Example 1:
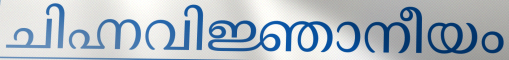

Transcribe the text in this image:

ചിഹ്നവിജ്ഞാനീയം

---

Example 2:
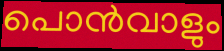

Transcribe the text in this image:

പൊൻവാളും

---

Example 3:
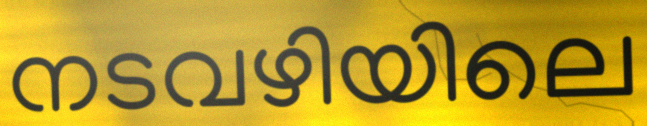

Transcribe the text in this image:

നടവഴിയിലെ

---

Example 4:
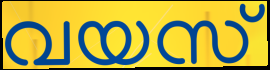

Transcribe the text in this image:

വയസ്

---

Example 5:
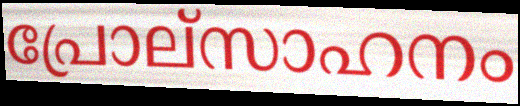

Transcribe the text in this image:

പ്രോല്സാഹനം